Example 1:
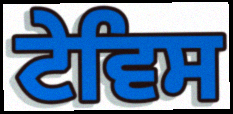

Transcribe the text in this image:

ਟੇਵਿਸ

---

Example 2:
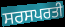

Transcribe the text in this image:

ਸਰਸਪਰਤੀ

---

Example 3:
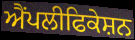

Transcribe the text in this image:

ਐਂਪਲੀਫਿਕੇਸ਼ਨ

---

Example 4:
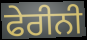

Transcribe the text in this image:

ਫੇਰੀਨੀ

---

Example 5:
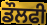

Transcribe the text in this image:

ਡੌਲਫੀ